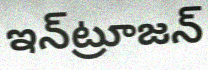
ఇన్‌ట్రూజన్